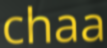
chaa